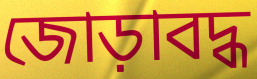
জোড়াবদ্ধ